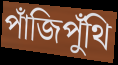
পাঁজিপুঁথি